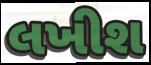
લખીશ